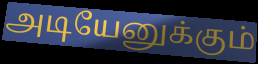
அடியேனுக்கும்